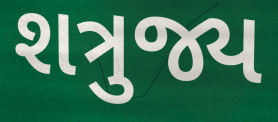
શત્રુજ્ય